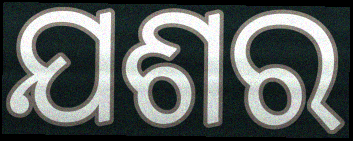
ଯଶର